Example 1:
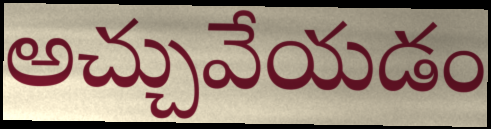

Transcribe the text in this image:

అచ్చువేయడం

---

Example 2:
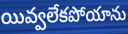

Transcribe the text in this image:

యివ్వలేకపోయాను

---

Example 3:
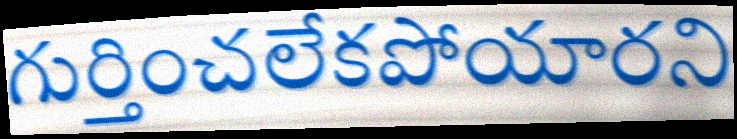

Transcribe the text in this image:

గుర్తించలేకపోయారని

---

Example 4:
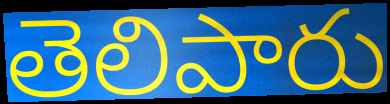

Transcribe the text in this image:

తెలిపారు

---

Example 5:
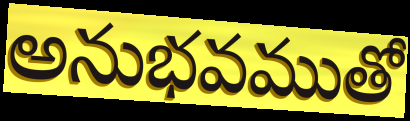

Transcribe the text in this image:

అనుభవముతో